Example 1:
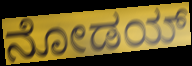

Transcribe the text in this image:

ನೋಡಯ್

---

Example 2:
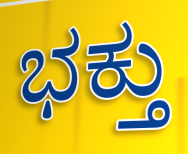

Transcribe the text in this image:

ಭಕ್ತು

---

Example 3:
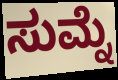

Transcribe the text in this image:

ಸುಮ್ನೆ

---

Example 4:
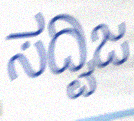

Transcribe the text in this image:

ಸದ್ವಿಜ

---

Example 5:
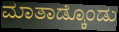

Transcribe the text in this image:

ಮಾತಾಡ್ಕೊಂಡು